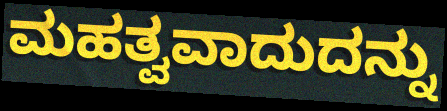
ಮಹತ್ವವಾದುದನ್ನು